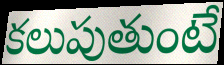
కలుపుతుంటే